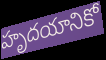
హృదయానికో